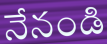
నేనండి